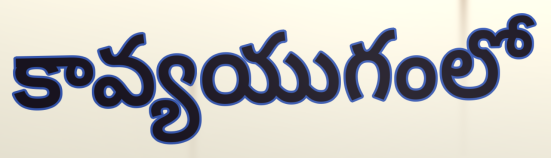
కావ్యయుగంలో